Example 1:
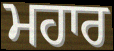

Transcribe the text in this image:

ਮਹਾਰ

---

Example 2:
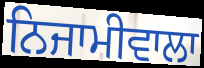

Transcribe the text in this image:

ਨਿਜਾਮੀਵਾਲਾ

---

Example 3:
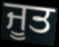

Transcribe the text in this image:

ਜੂਤ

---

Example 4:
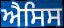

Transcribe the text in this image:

ਐਸਿਸ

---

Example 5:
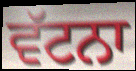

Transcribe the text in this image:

ਵੱਟਨਾ